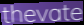
thevate